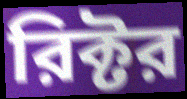
রিক্টর